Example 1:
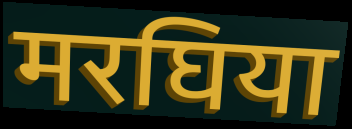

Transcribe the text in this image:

मरघिया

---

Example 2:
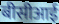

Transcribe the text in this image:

बीसीआई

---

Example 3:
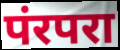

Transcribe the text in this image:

पंरपरा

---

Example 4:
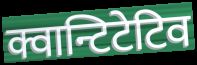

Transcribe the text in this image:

क्वान्टिटेटिव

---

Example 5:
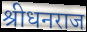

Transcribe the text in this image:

श्रीधनराज